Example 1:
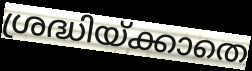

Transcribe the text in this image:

ശ്രദ്ധിയ്ക്കാതെ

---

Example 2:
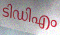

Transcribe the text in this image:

ടിഡിഎം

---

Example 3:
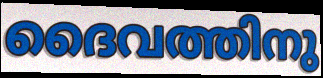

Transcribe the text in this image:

ദൈവത്തിനു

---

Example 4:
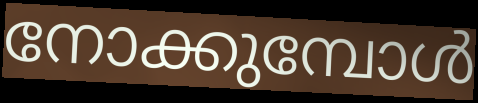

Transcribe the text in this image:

നോക്കുമ്പോൾ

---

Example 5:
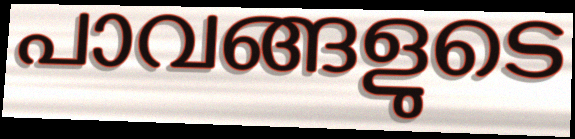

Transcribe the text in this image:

പാവങ്ങളുടെ